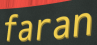
faran